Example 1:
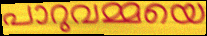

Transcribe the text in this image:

പാറുവമ്മയെ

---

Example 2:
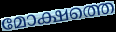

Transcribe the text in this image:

മോക്ഷത്തെ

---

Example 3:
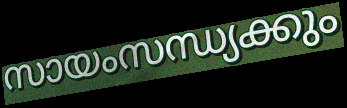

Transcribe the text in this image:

സായംസന്ധ്യക്കും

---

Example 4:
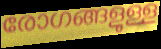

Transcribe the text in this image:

രോഗങ്ങളുള്ള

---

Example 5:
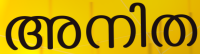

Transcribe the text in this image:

അനിത